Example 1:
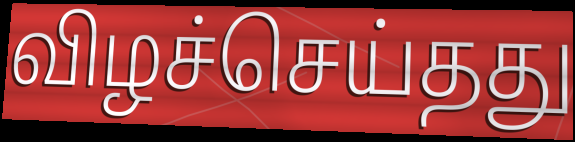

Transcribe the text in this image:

விழச்செய்தது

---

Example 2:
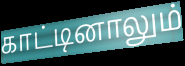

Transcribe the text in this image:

காட்டினாலும்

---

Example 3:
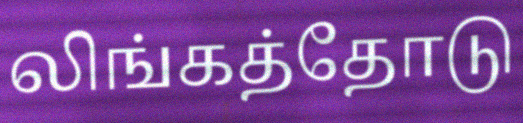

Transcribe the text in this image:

லிங்கத்தோடு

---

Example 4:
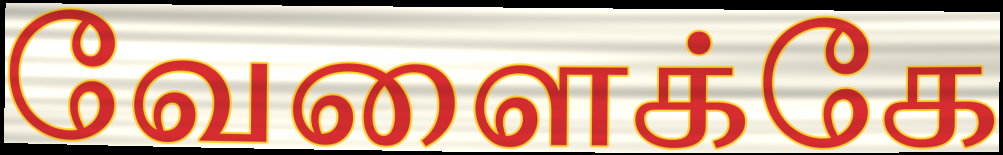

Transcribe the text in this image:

வேளைக்கே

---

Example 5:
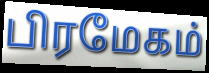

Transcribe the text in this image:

பிரமேகம்